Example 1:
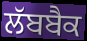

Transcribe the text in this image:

ਲੱਬਬੈਕ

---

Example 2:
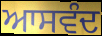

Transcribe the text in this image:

ਆਸਵੰਦ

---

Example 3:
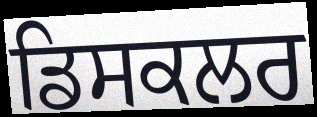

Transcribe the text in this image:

ਡਿਸਕਲਰ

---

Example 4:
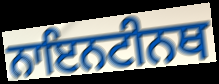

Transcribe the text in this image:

ਨਾਇਨਟੀਨਥ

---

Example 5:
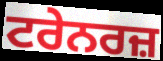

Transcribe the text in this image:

ਟਰੇਨਰਜ਼